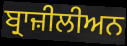
ਬ੍ਰਾਜ਼ੀਲੀਅਨ